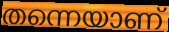
തന്നെയാണ്